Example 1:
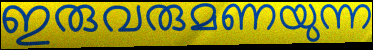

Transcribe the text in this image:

ഇരുവരുമണയുന്ന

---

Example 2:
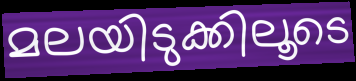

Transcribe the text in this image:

മലയിടുക്കിലൂടെ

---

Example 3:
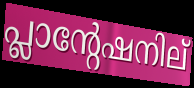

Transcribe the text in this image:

പ്ലാന്റേഷനില്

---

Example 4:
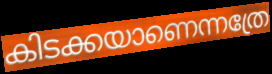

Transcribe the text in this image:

കിടക്കയാണെന്നത്രേ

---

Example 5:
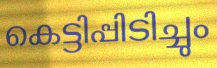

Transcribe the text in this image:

കെട്ടിപ്പിടിച്ചും